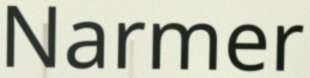
Narmer